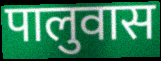
पालुवास